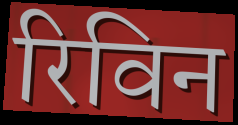
रिविन